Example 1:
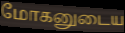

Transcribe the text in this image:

மோகனுடைய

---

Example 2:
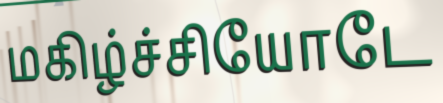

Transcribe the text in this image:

மகிழ்ச்சியோடே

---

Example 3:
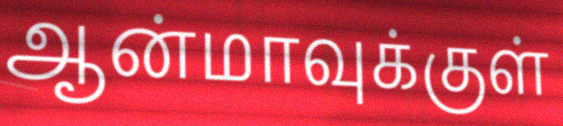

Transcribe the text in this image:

ஆன்மாவுக்குள்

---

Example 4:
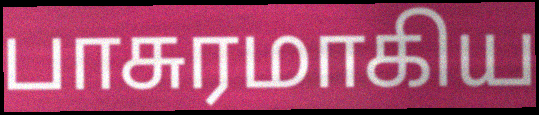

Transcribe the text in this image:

பாசுரமாகிய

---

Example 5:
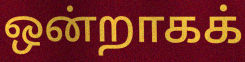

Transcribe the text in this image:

ஒன்றாகக்